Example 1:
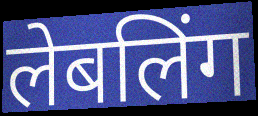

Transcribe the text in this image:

लेबलिंग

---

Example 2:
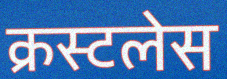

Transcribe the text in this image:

क्रस्टलेस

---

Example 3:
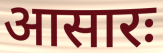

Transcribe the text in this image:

आसारः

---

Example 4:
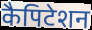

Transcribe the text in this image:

कैपिटेशन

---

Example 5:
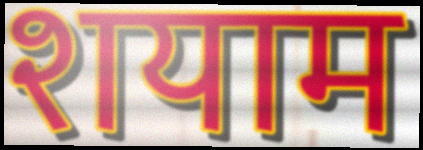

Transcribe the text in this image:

शयाम